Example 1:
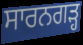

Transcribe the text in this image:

ਸਾਰਨਗੜ੍ਹ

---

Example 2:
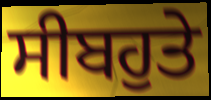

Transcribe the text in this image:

ਸੀਬਹੁਤੇ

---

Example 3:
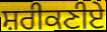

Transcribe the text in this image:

ਸ਼ਰੀਕਣੀਏ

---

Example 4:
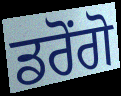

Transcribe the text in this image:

ਡਰੋਂਗੋ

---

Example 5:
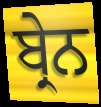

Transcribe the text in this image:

ਬ੍ਰੇਨ